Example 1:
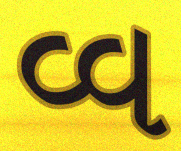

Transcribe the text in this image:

વ્વ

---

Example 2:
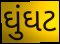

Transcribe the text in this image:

ઘુંઘટ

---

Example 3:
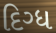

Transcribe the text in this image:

દિગ્ધ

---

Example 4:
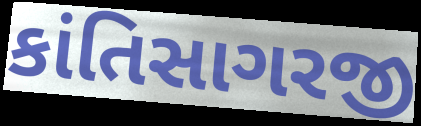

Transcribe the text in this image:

કાંતિસાગરજી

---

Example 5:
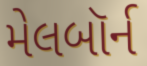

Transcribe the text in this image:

મેલબૉર્ન